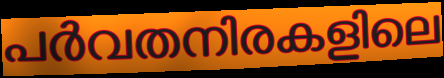
പർവതനിരകളിലെ